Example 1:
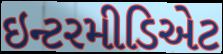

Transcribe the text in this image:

ઇન્ટરમીડિએટ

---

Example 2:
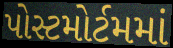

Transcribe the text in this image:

પોસ્ટમોર્ટમમાં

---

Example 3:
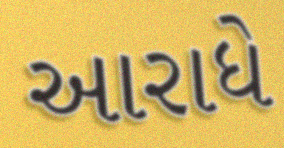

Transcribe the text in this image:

આરાધે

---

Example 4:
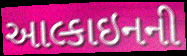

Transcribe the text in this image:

આલ્કાઇનની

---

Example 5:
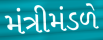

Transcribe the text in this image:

મંત્રીમંડળે